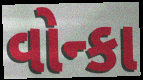
વોન્કા